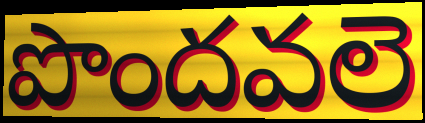
పొందవలె